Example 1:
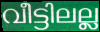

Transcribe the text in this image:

വീട്ടിലല്ല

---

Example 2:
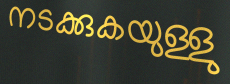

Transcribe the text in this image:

നടക്കുകയുള്ളു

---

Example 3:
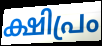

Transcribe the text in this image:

ക്ഷിപ്രം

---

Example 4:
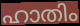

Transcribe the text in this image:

ഹാതിം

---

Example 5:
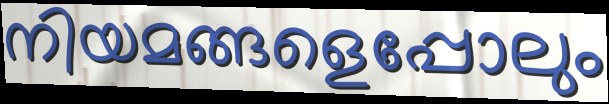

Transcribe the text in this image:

നിയമങ്ങളെപ്പോലും